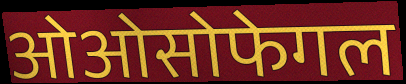
ओओसोफेगल